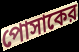
পোসাকের